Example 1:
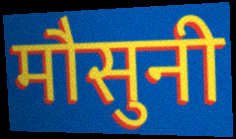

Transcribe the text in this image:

मौसुनी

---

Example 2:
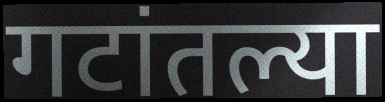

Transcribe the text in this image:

गटांतल्या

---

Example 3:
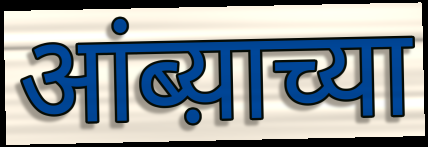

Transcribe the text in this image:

आंब्य़ाच्या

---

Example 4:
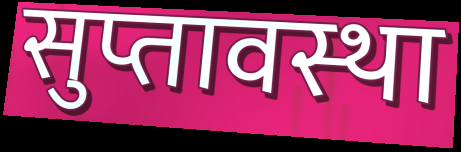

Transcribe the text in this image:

सुप्तावस्था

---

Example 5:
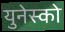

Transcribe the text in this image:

युनेस्को